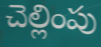
చెల్లింపు